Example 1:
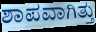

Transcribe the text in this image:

ಶಾಪವಾಗಿತ್ತು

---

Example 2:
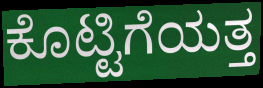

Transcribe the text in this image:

ಕೊಟ್ಟಿಗೆಯತ್ತ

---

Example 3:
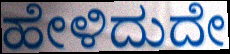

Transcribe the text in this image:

ಹೇಳಿದುದೇ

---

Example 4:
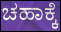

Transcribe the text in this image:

ಚಹಾಕ್ಕೆ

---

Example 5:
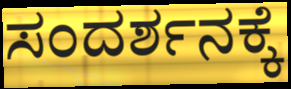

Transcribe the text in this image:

ಸಂದರ್ಶನಕ್ಕೆ